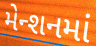
મેન્શનમાં